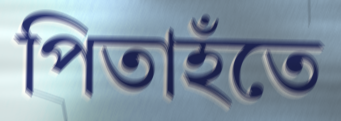
পিতাহঁতে